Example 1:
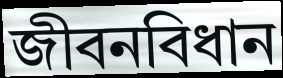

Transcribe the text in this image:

জীবনবিধান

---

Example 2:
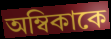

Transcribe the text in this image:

অম্বিকাকে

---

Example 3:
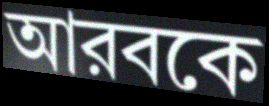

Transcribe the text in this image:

আরবকে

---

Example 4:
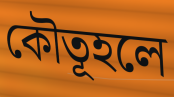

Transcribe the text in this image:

কৌতূহলে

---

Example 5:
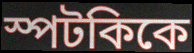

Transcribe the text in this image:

স্পটকিকে